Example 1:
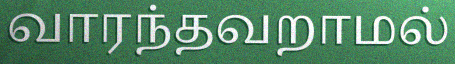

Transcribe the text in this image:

வாரந்தவறாமல்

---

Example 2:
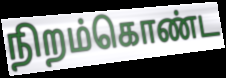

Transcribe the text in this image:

நிறம்கொண்ட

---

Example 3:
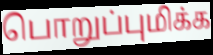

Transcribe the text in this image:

பொறுப்புமிக்க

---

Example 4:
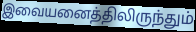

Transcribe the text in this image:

இவையனைத்திலிருந்தும்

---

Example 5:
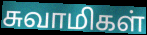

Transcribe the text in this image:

சுவாமிகள்